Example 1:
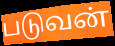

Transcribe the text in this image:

படுவன்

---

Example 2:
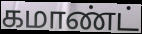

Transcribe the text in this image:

கமாண்ட்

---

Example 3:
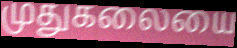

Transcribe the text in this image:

முதுகலையை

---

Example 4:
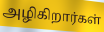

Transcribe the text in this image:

அழிகிறார்கள்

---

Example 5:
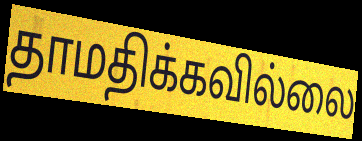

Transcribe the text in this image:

தாமதிக்கவில்லை